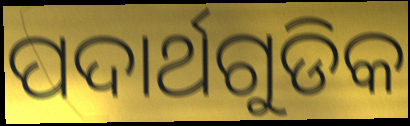
ପଦାର୍ଥଗୁଡିକ